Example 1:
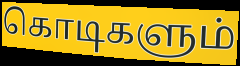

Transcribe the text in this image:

கொடிகளும்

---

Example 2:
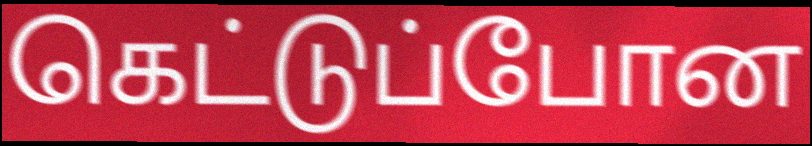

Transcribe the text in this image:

கெட்டுப்போன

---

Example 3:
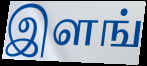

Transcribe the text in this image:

இளங்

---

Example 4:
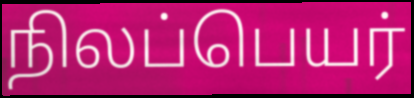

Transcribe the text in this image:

நிலப்பெயர்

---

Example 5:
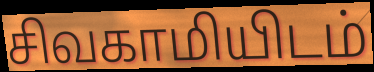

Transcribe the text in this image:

சிவகாமியிடம்